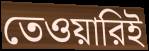
তেওয়ারিই